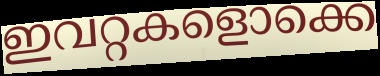
ഇവറ്റകളൊക്കെ